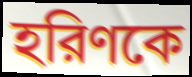
হরিণকে